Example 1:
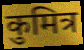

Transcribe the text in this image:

कुमित्र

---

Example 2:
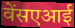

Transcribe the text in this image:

वेंसएआई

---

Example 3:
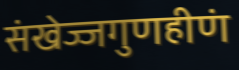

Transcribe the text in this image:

संखेज्जगुणहीणं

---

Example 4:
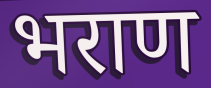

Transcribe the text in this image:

भराण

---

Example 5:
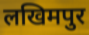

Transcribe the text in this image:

लखिमपुर